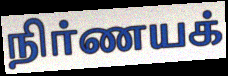
நிர்ணயக்